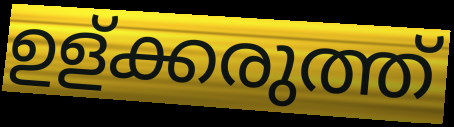
ഉള്ക്കരുത്ത്